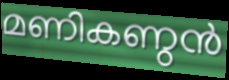
മണികണ്ഠൻ